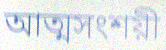
আত্মসংশয়ী